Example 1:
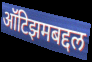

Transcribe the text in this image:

ऑटिझमबद्दल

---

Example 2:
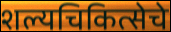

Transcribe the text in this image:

शल्यचिकित्सेचे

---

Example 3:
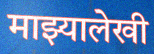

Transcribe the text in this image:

माझ्यालेखी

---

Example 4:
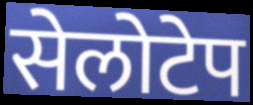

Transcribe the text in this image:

सेलोटेप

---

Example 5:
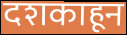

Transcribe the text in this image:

दशकाहून